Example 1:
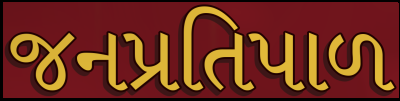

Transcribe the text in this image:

જનપ્રતિપાળ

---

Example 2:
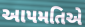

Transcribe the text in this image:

આપમતિએ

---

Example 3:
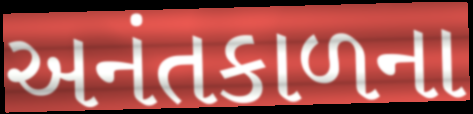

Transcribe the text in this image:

અનંતકાળના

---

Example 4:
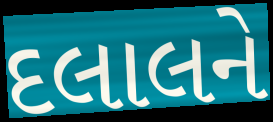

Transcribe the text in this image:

દલાલને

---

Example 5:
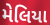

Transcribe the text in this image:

મેલિયા